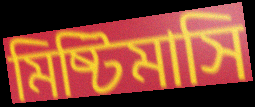
মিষ্টিমাসি